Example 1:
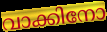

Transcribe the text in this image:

വാക്കിനോ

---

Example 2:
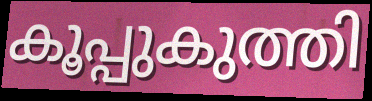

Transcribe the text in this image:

കൂപ്പുകുത്തി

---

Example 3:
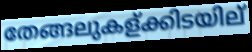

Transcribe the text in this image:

തേങ്ങലുകള്ക്കിടയില്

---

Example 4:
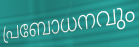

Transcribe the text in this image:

പ്രബോധനവും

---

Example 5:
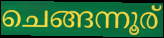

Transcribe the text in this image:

ചെങ്ങന്നൂര്